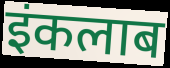
इंकलाब